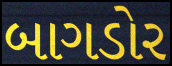
બાગડોર